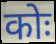
कोः